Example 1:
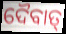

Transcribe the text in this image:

ଦୈବାତ୍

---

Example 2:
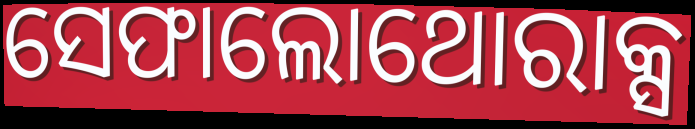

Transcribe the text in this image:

ସେଫାଲୋଥୋରାକ୍ସ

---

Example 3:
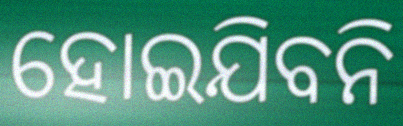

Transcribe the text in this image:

ହୋଇଯିବନି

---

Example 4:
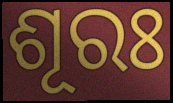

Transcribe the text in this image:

ଶୂରଃ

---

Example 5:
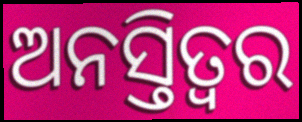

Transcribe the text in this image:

ଅନସ୍ତିତ୍ୱର